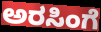
ಅರಸಿಂಗೆ